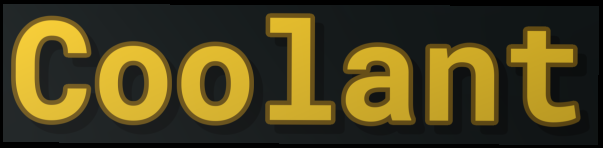
Coolant